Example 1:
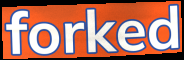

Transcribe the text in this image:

forked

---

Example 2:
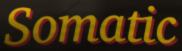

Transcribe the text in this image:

Somatic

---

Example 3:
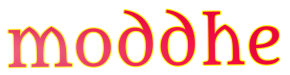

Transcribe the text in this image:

moddhe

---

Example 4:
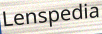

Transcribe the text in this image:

Lenspedia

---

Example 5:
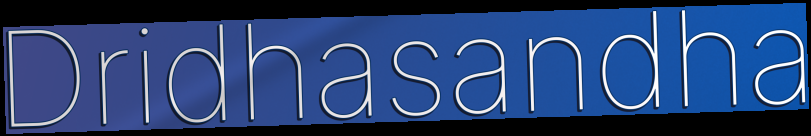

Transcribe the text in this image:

Dridhasandha